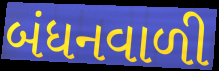
બંધનવાળી